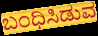
ಬಂಧಿಸಿಡುವ